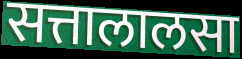
सत्तालालसा